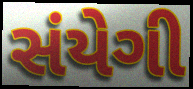
સંયેગી